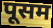
पूसम